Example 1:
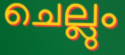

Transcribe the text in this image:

ചെല്ലും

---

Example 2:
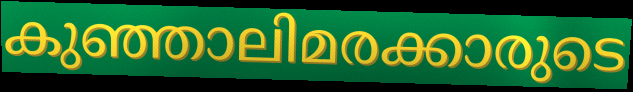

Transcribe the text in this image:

കുഞ്ഞാലിമരക്കാരുടെ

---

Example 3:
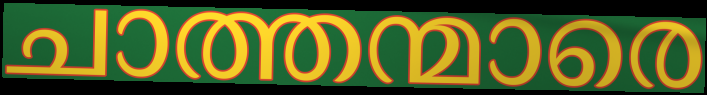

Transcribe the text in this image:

ചാത്തന്മാരെ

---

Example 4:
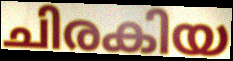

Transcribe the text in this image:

ചിരകിയ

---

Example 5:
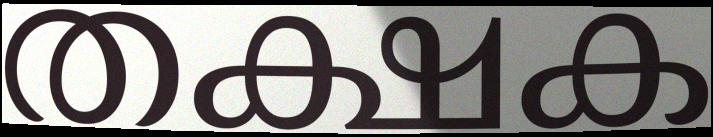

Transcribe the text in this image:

തക്ഷക